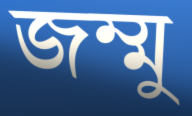
জম্মু